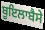
ਬੂਇਲਾਬੈਸੇ